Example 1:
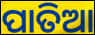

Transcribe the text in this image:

ପାତିଆ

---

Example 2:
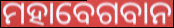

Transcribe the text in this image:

ମହାବେଗବାନ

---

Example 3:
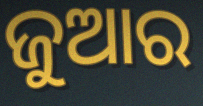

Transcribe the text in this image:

ଜୁଆର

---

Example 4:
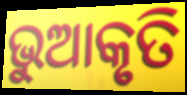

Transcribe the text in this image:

ଭୁଆକୃତି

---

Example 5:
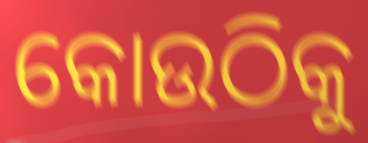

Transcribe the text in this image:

କୋଉଠିକୁ